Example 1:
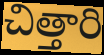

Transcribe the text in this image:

చిత్తారి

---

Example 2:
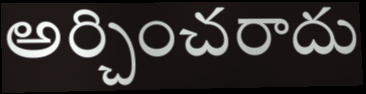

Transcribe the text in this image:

అర్చించరాదు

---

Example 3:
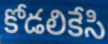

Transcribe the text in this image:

కోడలికేసి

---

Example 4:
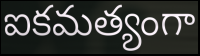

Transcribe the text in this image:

ఐకమత్యంగా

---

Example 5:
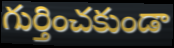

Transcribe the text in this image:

గుర్తించకుండా